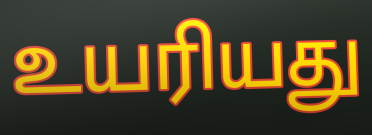
உயரியது